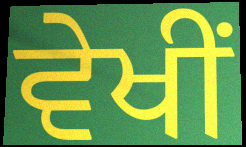
ਵੇਖੀਂ